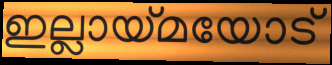
ഇല്ലായ്മയോട്